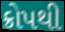
ક્રોપથી